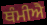
ਥੰਮੀਐ